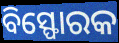
ବିସ୍ଫୋରକ